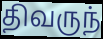
திவருந்